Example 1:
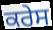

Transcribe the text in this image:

ਕਰੇਸ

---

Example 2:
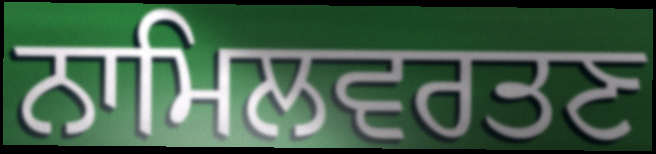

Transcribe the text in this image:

ਨਾਮਿਲਵਰਤਣ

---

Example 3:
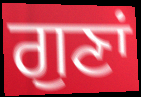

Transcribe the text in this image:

ਗੁਣਾਂ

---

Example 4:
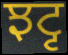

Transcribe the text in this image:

ਝਟ੍ਟ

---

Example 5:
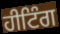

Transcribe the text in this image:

ਹੀਟਿੰਗ